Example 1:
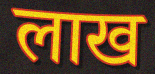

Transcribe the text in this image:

लाख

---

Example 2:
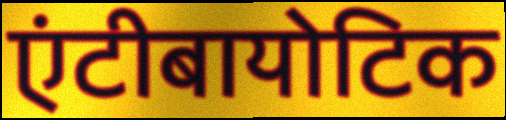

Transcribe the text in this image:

एंटीबायोटिक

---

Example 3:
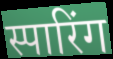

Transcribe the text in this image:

स्पारिंग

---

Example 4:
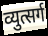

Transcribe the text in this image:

व्युत्सर्ग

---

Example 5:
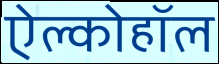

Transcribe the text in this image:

ऐल्कोहॉल